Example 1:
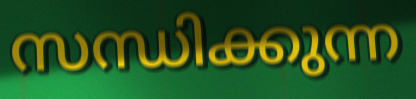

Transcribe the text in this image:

സന്ധിക്കുന്ന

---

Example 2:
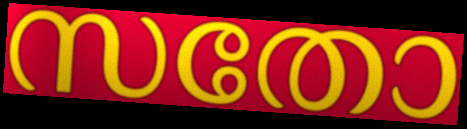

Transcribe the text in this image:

സതോ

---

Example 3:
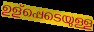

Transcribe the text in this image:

ഉള്പ്പെടെയുള്ള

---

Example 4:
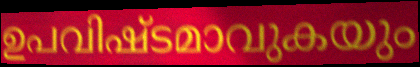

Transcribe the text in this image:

ഉപവിഷ്ടമാവുകയും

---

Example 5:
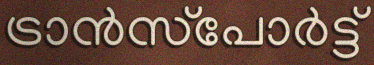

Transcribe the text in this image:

ട്രാൻസ്‌പോർട്ട്